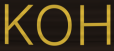
KOH